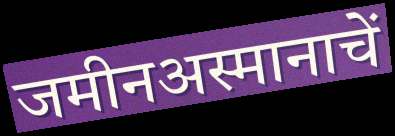
जमीनअस्मानाचें